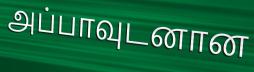
அப்பாவுடனான